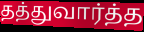
தத்துவார்த்த